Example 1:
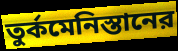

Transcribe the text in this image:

তুর্কমেনিস্তানের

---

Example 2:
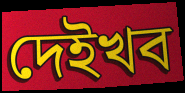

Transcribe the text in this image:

দেইখব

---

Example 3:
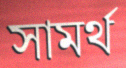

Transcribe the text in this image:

সামর্থ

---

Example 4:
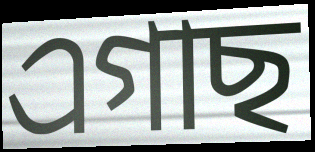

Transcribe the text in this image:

এগাছ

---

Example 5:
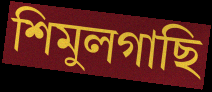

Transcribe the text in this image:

শিমুলগাছি